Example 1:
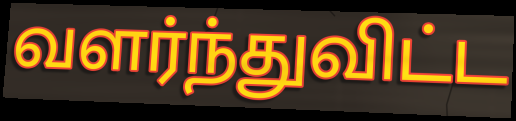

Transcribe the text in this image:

வளர்ந்துவிட்ட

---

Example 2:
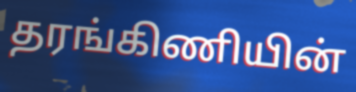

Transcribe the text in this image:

தரங்கிணியின்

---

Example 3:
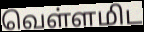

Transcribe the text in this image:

வெள்ளமிட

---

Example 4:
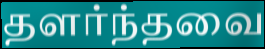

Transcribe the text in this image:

தளர்ந்தவை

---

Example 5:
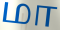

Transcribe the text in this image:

மா